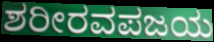
ಶರೀರವಪಜಯ